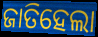
ଜାତିହେଲା